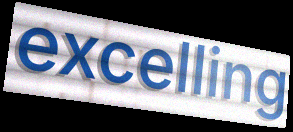
excelling